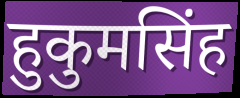
हुकुमसिंह